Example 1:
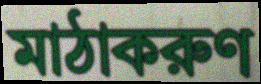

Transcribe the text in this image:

মাঠাকরুণ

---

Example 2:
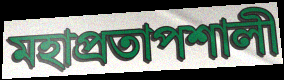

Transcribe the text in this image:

মহাপ্রতাপশালী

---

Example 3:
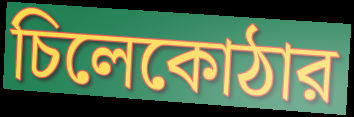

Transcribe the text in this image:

চিলেকোঠার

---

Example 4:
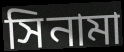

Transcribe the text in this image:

সিনামা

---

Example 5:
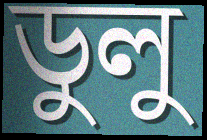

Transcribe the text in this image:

ডুলু